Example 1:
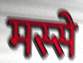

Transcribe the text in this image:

मस्से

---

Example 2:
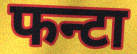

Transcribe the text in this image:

फन्टा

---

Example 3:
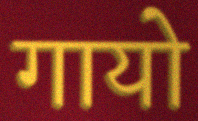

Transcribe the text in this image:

गायो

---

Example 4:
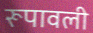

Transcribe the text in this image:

रूपावली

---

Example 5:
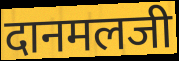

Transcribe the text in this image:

दानमलजी